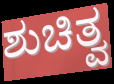
ಶುಚಿತ್ವ